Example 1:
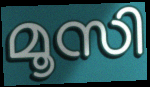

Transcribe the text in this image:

മൂസി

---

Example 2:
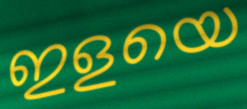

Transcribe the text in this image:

ഇളയെ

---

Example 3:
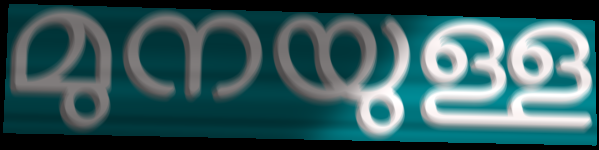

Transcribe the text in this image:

മുനയുള്ള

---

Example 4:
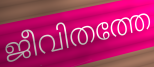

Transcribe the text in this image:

ജീവിതത്തേ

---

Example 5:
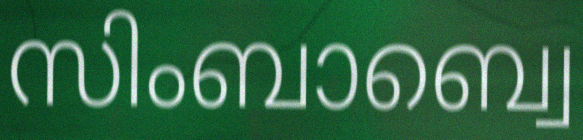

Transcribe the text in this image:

സിംബാബ്വെ